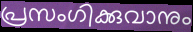
പ്രസംഗിക്കുവാനും